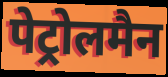
पेट्रोलमैन